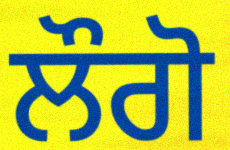
ਲੌਗੋ